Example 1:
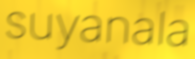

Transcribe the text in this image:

suyanala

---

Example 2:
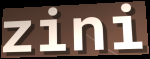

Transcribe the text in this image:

zini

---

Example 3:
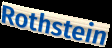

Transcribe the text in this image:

Rothstein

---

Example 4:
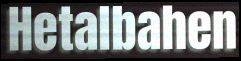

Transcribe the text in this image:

Hetalbahen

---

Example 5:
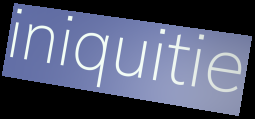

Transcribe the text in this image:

iniquitie